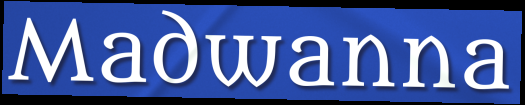
Madwanna